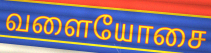
வளையோசை